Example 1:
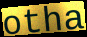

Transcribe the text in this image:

otha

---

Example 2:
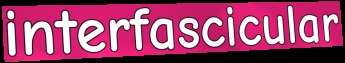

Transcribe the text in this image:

interfascicular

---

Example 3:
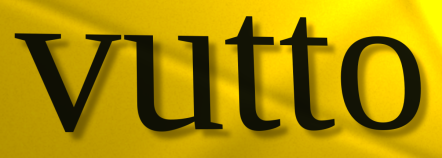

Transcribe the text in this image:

vutto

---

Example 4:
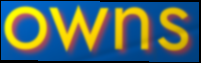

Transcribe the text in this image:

owns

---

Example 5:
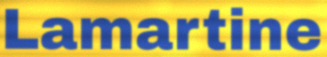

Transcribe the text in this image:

Lamartine